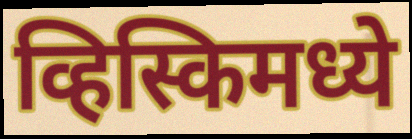
व्हिस्किमध्ये